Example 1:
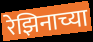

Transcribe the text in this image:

रेझिनाच्या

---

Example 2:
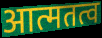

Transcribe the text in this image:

आत्मतत्व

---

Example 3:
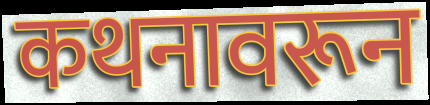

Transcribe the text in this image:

कथनावरून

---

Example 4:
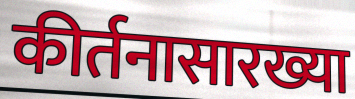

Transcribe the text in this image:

कीर्तनासारख्या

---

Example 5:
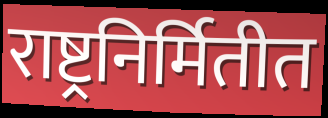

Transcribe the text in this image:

राष्ट्रनिर्मितीत